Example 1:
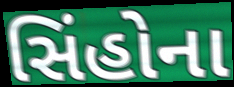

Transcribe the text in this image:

સિંહોના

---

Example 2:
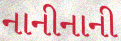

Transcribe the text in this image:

નાનીનાની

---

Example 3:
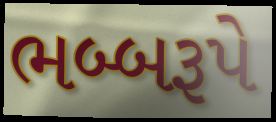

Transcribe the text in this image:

ભબ્બરૂપે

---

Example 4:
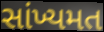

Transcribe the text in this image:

સાંખ્યમત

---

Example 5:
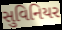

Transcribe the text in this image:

સુવિનિયર